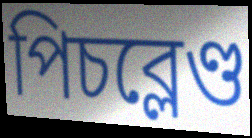
পিচব্লেণ্ড